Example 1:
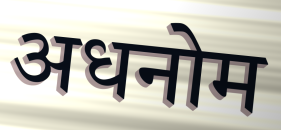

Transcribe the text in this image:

अधनोम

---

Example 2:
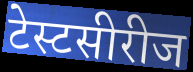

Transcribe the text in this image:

टेस्टसीरीज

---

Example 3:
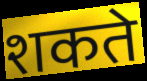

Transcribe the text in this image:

शकते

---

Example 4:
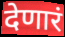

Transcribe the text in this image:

देणारं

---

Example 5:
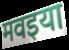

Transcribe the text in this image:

मवइया